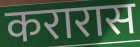
करारास